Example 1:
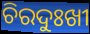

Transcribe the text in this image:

ଚିରଦୁଃଖୀ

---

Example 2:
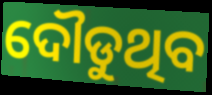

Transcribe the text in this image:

ଦୌଡୁଥିବ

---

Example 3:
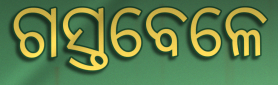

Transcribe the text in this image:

ଗସ୍ତବେଳେ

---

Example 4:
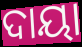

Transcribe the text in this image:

ଦାୟା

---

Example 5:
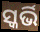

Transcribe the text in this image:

ସ୍କର୍ଭି